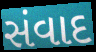
સંવાદ